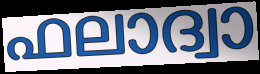
ഫലാദ്വാ